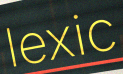
lexic